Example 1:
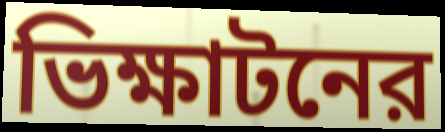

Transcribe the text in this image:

ভিক্ষাটনের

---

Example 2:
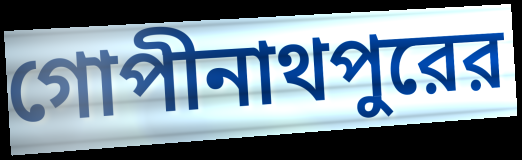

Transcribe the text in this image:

গোপীনাথপুরের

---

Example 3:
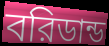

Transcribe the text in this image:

বরিডান্ড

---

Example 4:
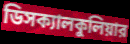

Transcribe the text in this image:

ডিসক্যালকুলিয়ার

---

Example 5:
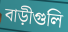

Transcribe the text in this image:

বাড়ীগুলি